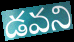
డవని